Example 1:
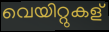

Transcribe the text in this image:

വെയിറ്റുകള്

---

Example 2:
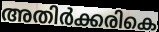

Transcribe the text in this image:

അതിർക്കരികെ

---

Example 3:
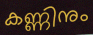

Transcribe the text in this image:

കണ്ണിനും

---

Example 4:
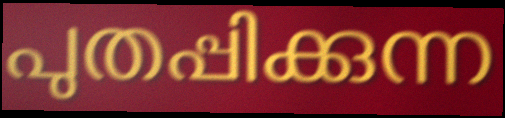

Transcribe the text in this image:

പുതപ്പിക്കുന്ന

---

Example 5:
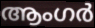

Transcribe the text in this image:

ആംഗർ